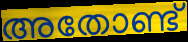
അതോണ്ട്